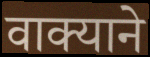
वाक्याने